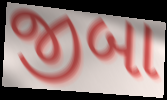
જીબા